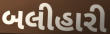
બલીહારી